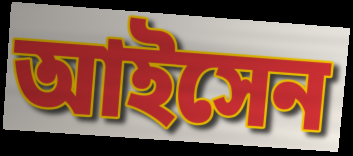
আইসেন